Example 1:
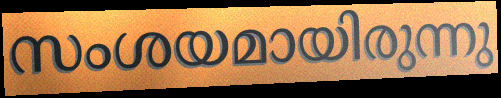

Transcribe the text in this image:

സംശയമായിരുന്നു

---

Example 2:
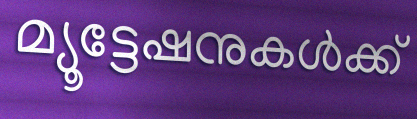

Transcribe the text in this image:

മ്യൂട്ടേഷനുകൾക്ക്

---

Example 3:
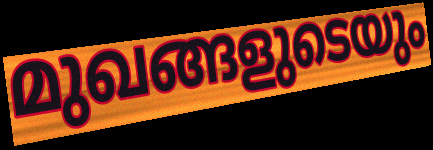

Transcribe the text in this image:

മുഖങ്ങളുടെയും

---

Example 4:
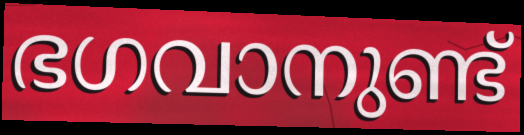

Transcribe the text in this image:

ഭഗവാനുണ്ട്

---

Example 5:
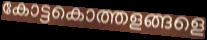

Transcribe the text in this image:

കോട്ടകൊത്തളങ്ങളെ